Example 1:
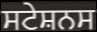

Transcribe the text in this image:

ਸਟੇਸ਼ਨਸ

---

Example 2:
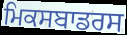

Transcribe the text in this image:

ਮਿਕਸਬਾਡਰਸ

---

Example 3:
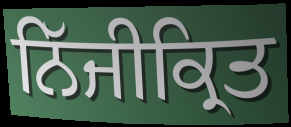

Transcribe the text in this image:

ਨਿੱਜੀਕ੍ਰਿਤ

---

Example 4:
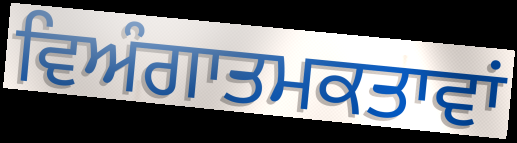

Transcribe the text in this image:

ਵਿਅੰਗਾਤਮਕਤਾਵਾਂ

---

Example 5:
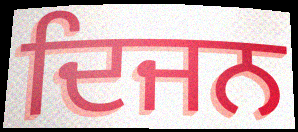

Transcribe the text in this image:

ਦਿਜਨ